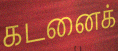
கடனைக்